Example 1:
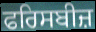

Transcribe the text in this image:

ਫਰਿਸਬੀਜ਼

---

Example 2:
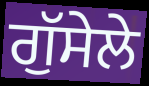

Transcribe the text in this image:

ਗੁੱਸੇਲੇ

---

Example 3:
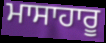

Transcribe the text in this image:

ਮਾਸਾਹਾਰੂ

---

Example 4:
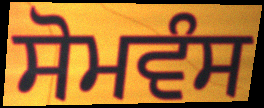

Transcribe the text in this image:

ਸੋਮਵੰਸ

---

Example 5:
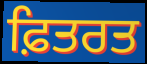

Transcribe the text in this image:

ਫ਼ਿਤਰਤ